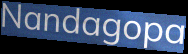
Nandagopa